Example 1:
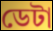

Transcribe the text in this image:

ডেটা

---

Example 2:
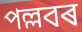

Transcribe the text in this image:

পল্লবৰ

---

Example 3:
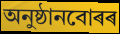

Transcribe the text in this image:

অনুষ্ঠানবোৰৰ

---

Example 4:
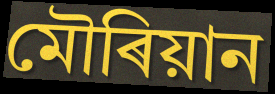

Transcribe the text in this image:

মৌৰিয়ান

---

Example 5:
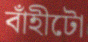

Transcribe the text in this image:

বাঁহীটো